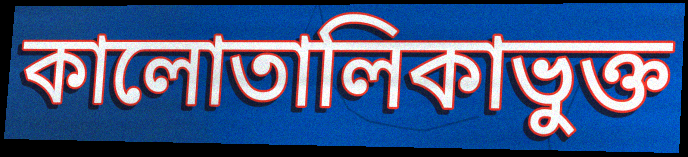
কালোতালিকাভুক্ত